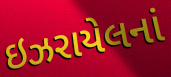
ઇઝરાયેલનાં